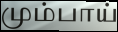
மும்பாய்